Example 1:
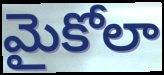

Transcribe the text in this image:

మైకోలా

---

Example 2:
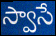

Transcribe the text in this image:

స్వాసే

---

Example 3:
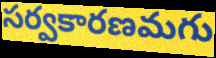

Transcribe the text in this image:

సర్వకారణమగు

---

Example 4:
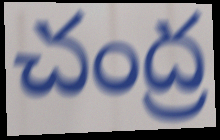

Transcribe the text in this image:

చంద్ర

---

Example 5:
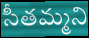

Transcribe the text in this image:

సీతమ్మని